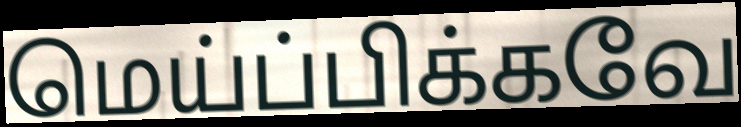
மெய்ப்பிக்கவே